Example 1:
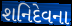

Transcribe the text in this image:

શનિદેવના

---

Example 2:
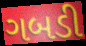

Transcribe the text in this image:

ગબડી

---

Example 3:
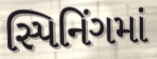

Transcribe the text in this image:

સ્પિનિંગમાં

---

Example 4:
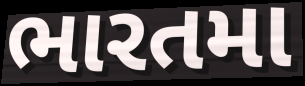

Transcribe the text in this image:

ભારતમા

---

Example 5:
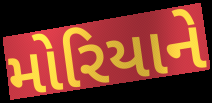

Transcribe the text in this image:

મોરિયાને